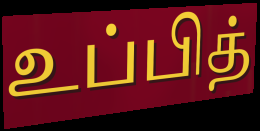
உப்பித்